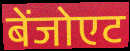
बेंजोएट